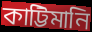
কাট্টিমানি